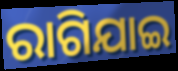
ରାଗିଯାଇ